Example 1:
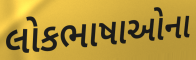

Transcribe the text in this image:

લોકભાષાઓના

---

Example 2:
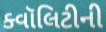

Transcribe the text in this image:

ક્વૉલિટીની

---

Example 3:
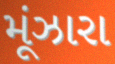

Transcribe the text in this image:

મૂંઝારા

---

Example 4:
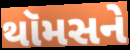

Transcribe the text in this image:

થૉમસને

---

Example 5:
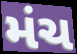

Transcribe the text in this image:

મંચ